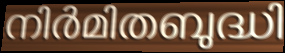
നിർമിതബുദ്ധി